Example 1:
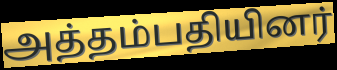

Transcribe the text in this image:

அத்தம்பதியினர்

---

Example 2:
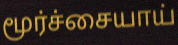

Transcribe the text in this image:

மூர்ச்சையாய்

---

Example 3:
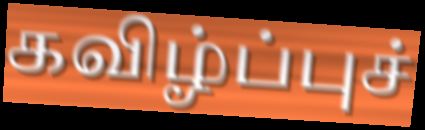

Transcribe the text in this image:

கவிழ்ப்புச்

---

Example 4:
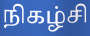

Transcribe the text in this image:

நிகழ்சி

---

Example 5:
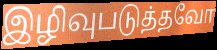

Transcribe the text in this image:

இழிவுபடுத்தவோ